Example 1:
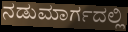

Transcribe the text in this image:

ನಡುಮಾರ್ಗದಲ್ಲಿ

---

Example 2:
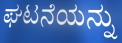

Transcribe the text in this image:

ಘಟನೆಯನ್ನು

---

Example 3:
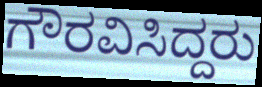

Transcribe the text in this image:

ಗೌರವಿಸಿದ್ದರು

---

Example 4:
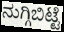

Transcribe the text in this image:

ನುಗ್ಗಿಬಿಟ್ಟೆ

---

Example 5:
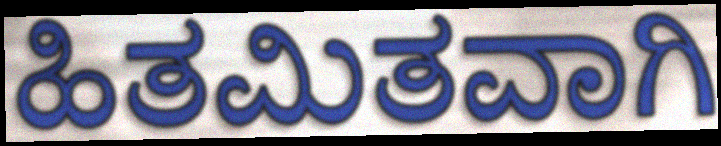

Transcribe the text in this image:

ಹಿತಮಿತವಾಗಿ